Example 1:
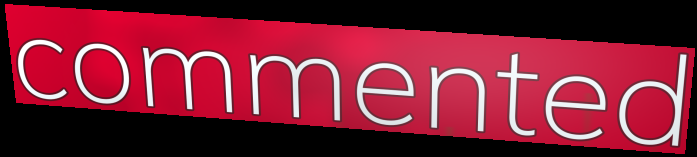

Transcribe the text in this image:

commented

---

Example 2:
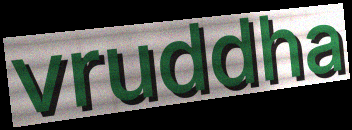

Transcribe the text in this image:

vruddha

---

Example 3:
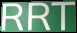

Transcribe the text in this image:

RRT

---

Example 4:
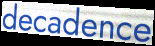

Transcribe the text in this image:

decadence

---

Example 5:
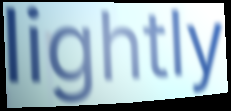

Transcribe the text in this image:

lightly